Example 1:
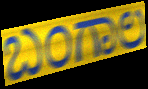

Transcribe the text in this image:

ಬಂಗಾಲ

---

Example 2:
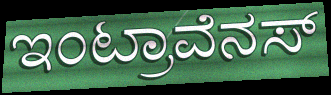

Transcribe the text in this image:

ಇಂಟ್ರಾವೆನಸ್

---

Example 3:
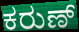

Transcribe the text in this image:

ಕರುಣ್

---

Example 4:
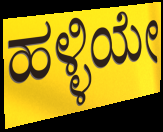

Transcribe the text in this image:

ಹಳ್ಳಿಯೇ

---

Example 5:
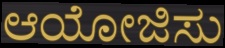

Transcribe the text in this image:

ಆಯೋಜಿಸು